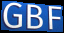
GBF